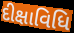
દીક્ષાવિધિ